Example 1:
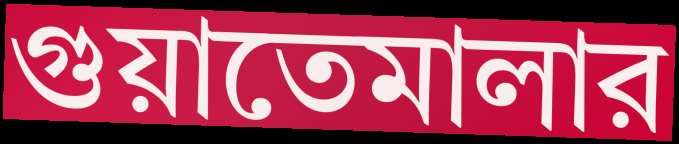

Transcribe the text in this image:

গুয়াতেমালার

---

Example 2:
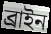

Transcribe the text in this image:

ব্রাইন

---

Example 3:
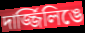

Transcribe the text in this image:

দার্জ্জিলিঙে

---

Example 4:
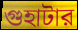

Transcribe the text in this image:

গুহাটার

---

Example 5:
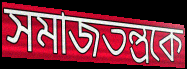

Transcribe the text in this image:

সমাজতন্ত্রকে